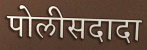
पोलीसदादा